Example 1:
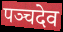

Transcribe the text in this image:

पञ्चदेव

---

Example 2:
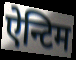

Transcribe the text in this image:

ऐन्टिम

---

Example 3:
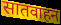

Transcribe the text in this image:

सातवाहन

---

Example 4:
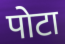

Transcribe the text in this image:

पोटा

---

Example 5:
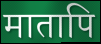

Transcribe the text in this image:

मातापि